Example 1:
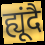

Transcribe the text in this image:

ह्यूंदै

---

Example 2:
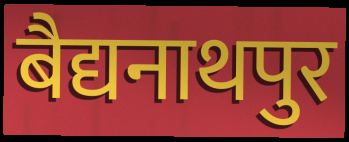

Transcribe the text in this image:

बैद्यनाथपुर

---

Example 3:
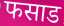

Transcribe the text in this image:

फसाड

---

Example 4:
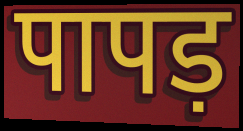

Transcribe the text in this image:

पापड़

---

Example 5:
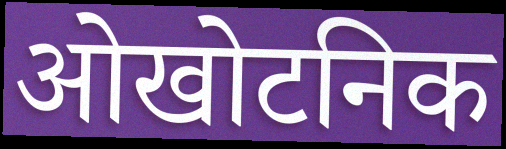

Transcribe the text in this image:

ओखोटनिक